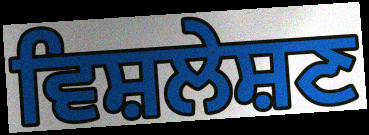
ਵਿਸ਼ਲੇਸ਼ਣ